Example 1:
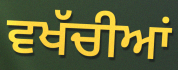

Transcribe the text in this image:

ਵਖੱਚੀਆਂ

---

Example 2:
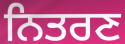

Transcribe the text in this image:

ਨਿਤਰਣ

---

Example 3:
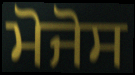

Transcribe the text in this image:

ਮੋਜੋਸ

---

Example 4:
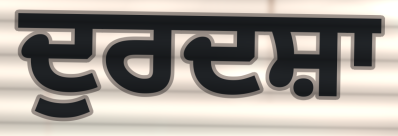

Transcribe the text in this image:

ਦੁਰਦਸ਼ਾ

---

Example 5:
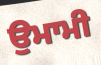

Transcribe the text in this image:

ਉਮਾਮੀ